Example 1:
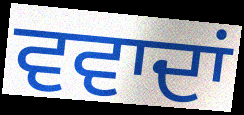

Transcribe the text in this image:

ਵਵਾਦਾਂ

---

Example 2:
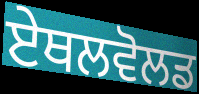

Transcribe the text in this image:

ਏਥਲਵੋਲਡ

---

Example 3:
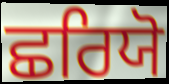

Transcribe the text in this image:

ਛਰਿਯੋ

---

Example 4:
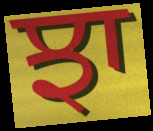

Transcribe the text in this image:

ਝਾ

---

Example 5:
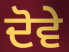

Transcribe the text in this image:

ਦੋਵੇ